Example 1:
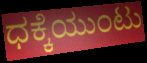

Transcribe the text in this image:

ಧಕ್ಕೆಯುಂಟು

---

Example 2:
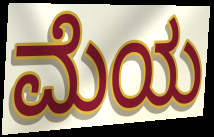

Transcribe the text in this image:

ಮೆಯ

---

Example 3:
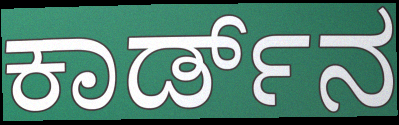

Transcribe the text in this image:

ಕಾರ್ಡ್‌ನ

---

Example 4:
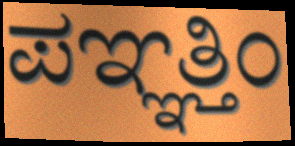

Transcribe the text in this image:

ಪಞ್ಞತ್ತಿಂ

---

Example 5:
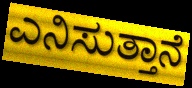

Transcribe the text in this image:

ಎನಿಸುತ್ತಾನೆ